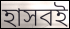
হাসবই